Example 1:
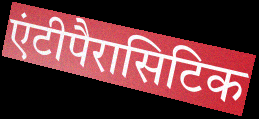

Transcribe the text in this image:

एंटीपैरासिटिक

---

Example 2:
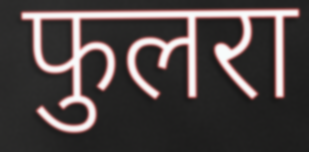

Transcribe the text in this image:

फुलरा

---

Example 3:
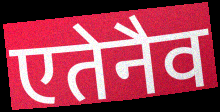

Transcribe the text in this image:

एतेनैव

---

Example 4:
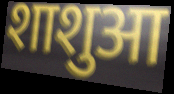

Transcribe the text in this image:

शाशुआ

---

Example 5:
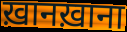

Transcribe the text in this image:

ख़ानख़ाना